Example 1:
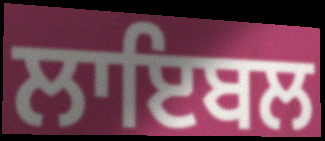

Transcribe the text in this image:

ਲਾਇਬਲ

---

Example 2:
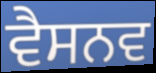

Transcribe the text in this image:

ਵੈਸਨਵ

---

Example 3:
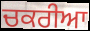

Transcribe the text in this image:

ਚਕਰੀਆ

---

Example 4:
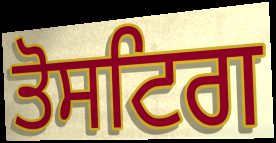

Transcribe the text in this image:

ਤੋਸਟਿਗ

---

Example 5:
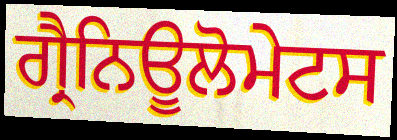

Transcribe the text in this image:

ਗ੍ਰੈਨਿਊਲੋਮੇਟਸ